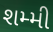
શમ્મી